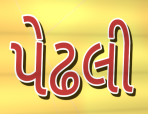
પેઢલી